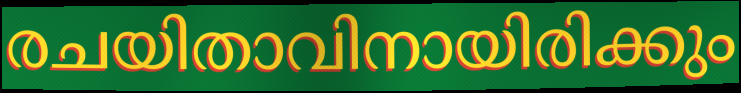
രചയിതാവിനായിരിക്കും